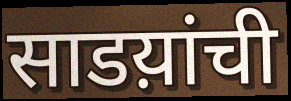
साडय़ांची